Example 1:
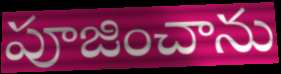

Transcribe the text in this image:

పూజించాను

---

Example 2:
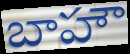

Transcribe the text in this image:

బాహౌ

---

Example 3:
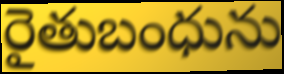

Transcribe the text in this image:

రైతుబంధును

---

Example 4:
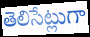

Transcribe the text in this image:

తెలిసేట్లుగా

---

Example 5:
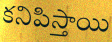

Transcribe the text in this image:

కనిపిస్తాయి